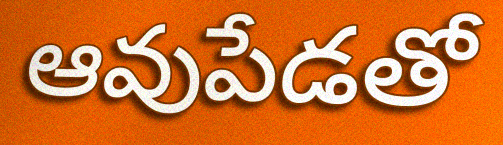
ఆవుపేడతో